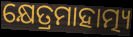
କ୍ଷେତ୍ରମାହାତ୍ମ୍ୟ